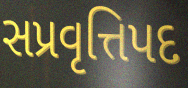
સપ્રવૃત્તિપદ